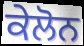
ਕੇਲੋਨ